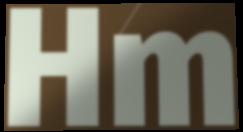
Hm